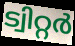
ട്വിറ്റർ